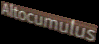
Altocumulus